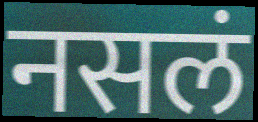
नसलं